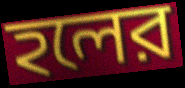
হলের